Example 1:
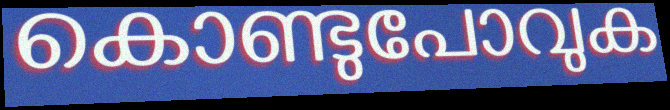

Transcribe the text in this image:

കൊണ്ടുപോവുക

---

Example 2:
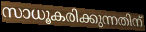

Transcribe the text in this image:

സാധൂകരിക്കുന്നതിന്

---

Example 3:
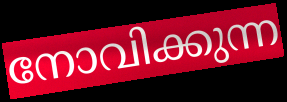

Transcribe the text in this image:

നോവിക്കുന്ന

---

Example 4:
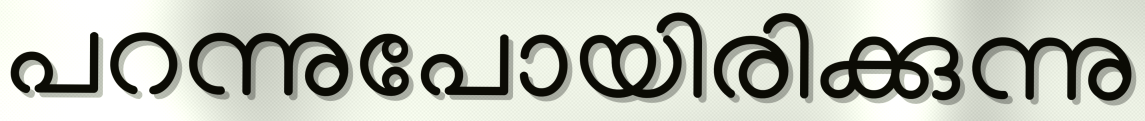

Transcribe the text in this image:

പറന്നുപോയിരിക്കുന്നു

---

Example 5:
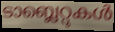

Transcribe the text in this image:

ടാബ്ലെറ്റുകൾ